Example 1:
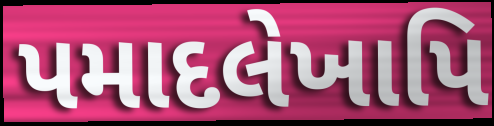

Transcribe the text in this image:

પમાદલેખાપિ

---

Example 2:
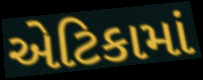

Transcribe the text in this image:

એટિકામાં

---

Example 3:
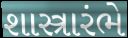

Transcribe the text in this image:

શાસ્ત્રારંભે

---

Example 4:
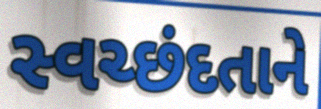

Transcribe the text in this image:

સ્વચ્છંદતાને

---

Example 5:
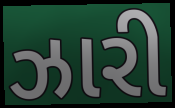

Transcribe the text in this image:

ઝારી